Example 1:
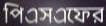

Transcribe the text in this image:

পিএসএফের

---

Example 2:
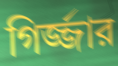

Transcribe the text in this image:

গির্জ্জার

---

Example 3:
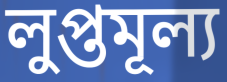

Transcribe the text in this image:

লুপ্তমূল্য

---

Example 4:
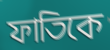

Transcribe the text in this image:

ফাতিকে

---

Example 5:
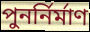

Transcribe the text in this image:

পুনর্নির্মাণ